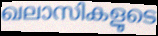
ഖലാസികളുടെ